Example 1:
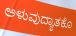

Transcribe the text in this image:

ಅಳುವುದ್ಯಾತಕೊ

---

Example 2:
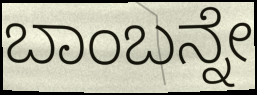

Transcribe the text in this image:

ಬಾಂಬನ್ನೇ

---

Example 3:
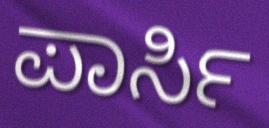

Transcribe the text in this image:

ಪಾರ್ಸಿ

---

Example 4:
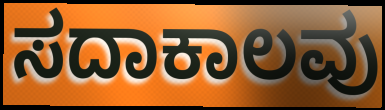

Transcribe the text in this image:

ಸದಾಕಾಲವು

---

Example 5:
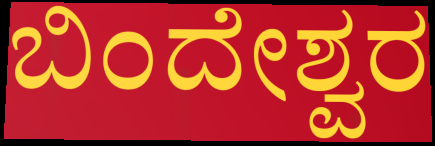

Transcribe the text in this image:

ಬಿಂದೇಶ್ವರ